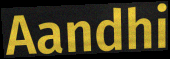
Aandhi